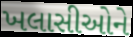
ખલાસીઓને